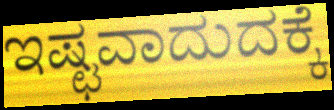
ಇಷ್ಟವಾದುದಕ್ಕೆ